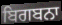
ਬਿਗਬਨਾ